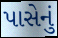
પાસેનું